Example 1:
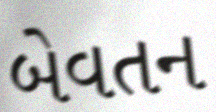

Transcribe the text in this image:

બેવતન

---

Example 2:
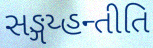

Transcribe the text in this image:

સઙ્ગય્હન્તીતિ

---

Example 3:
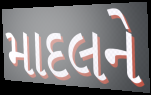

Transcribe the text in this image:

માદલને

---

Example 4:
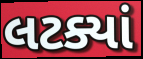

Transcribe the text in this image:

લટક્યાં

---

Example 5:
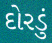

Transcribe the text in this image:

દોરડું